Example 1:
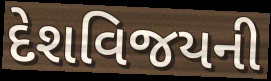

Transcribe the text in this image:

દેશવિજયની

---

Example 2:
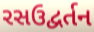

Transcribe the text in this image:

રસઉદ્વર્તન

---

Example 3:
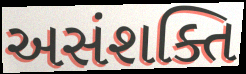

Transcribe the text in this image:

અસંશક્તિ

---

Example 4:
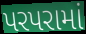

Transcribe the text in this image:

પરપરામાં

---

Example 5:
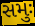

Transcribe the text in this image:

સમુઃ